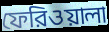
ফেরিওয়ালা